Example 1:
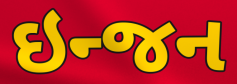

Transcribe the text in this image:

ઇન્જન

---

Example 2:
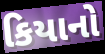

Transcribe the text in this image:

કિયાનો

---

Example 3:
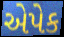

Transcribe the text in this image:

એપેક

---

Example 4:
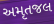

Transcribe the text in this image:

અમૃતજલ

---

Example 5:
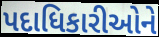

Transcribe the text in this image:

પદાધિકારીઓને